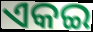
ଏକଇ